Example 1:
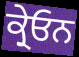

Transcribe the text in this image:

ਕ੍ਰੇਓਨ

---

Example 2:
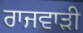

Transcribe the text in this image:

ਰਾਜਵਾੜੀ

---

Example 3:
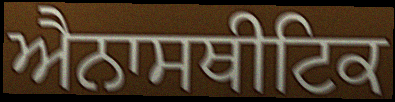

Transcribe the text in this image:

ਐਨਾਸਥੀਟਿਕ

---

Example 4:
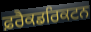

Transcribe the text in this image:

ਫ਼ਰੈਕਡਰਿਕਟਨ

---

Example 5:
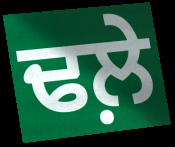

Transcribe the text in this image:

ਢਲ਼ੇ